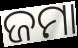
ଜମା